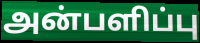
அன்பளிப்பு